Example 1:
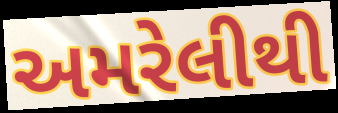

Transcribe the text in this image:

અમરેલીથી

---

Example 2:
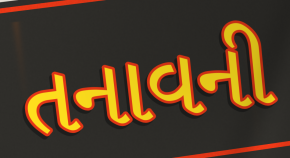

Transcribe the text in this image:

તનાવની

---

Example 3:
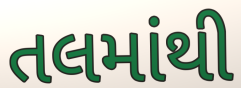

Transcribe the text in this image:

તલમાંથી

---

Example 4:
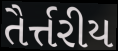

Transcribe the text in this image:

તૈર્ત્તરીય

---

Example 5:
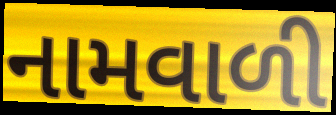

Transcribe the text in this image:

નામવાળી